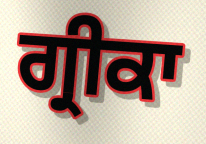
ਗ੍ਰੀਕਾ